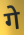
गे